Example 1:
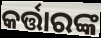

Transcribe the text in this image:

କର୍ତ୍ତାରଙ୍କ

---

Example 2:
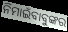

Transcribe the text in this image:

ନିମାଇଁବାବୁଙ୍କର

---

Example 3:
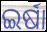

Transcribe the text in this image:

ଇର୍ଷା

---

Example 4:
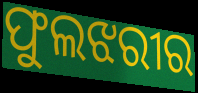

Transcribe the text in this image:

ଫୁଲଝରୀର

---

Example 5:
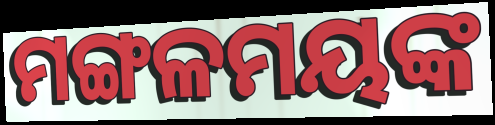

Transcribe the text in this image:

ମଙ୍ଗଳମୟଙ୍କ